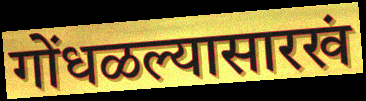
गोंधळल्यासारखं